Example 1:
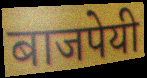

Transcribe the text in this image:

बाजपेयी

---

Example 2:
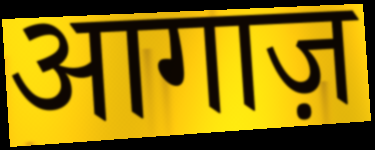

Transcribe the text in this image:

आगाज़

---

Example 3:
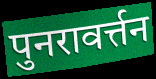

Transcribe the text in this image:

पुनरावर्त्तन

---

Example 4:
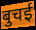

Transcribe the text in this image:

बुचई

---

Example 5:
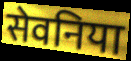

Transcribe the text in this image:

सेवनिया